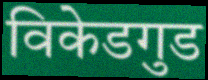
विकेडगुड